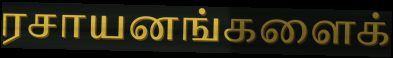
ரசாயனங்களைக்